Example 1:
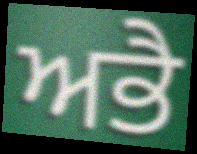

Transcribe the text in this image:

ਅਭੈ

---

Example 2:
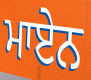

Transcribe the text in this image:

ਮਾਏਨ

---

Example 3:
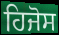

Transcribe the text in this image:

ਹਿਜੋਸ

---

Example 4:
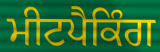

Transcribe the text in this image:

ਮੀਟਪੈਕਿੰਗ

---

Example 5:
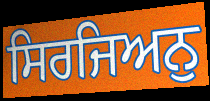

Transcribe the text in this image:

ਸਿਰਜਿਅਨੁ